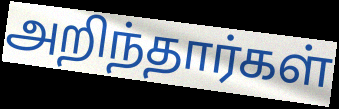
அறிந்தார்கள்